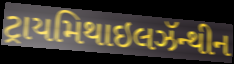
ટ્રાયમિથાઇલઝૅન્થીન